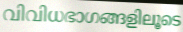
വിവിധഭാഗങ്ങളിലൂടെ